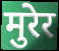
मुरेर